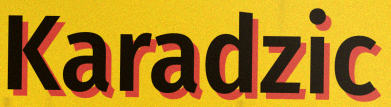
Karadzic